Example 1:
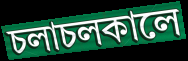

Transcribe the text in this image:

চলাচলকালে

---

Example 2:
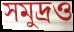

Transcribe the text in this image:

সমুদ্রও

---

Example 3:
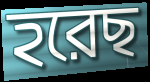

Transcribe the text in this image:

হরেছ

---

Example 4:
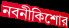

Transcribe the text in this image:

নবনীকিশোর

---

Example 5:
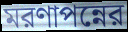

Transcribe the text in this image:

মরণাপন্নের